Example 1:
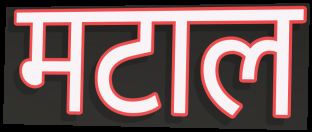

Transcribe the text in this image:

मटाल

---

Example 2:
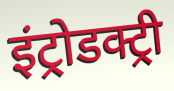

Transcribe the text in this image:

इंट्रोडक्ट्री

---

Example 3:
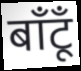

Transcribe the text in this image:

बाँटूँ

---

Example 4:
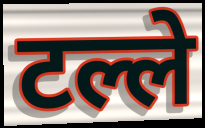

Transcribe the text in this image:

टल्ले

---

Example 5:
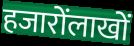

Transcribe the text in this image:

हजारोंलाखों